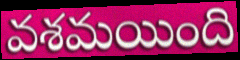
వశమయింది